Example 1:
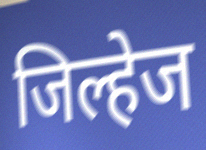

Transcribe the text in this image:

जिल्हेज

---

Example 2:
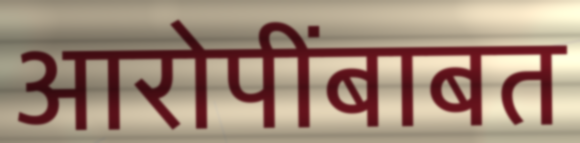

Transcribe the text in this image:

आरोपींबाबत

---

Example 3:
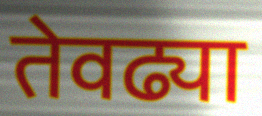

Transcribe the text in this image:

तेवढ्या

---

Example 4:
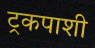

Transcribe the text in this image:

ट्रकपाशी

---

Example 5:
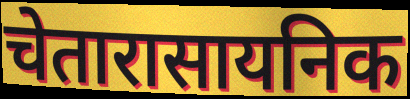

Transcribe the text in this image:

चेतारासायनिक